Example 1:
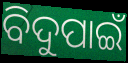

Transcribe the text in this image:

ବିଦୁପାଇଁ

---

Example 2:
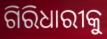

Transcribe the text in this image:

ଗିରିଧାରୀକୁ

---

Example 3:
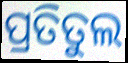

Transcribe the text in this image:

ପ୍ରତିତୁଲ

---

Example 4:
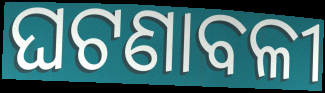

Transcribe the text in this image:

ଘଟଣାବଳୀ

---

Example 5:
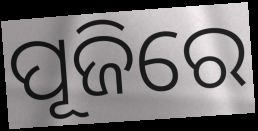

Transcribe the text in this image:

ପୂଜିରେ